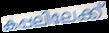
കപ്പലിലേക്ക്